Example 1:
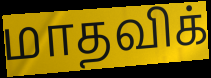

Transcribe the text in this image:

மாதவிக்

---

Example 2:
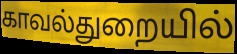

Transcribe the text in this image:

காவல்துறையில்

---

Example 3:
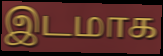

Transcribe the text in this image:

இடமாக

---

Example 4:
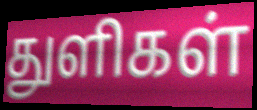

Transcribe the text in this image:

துளிகள்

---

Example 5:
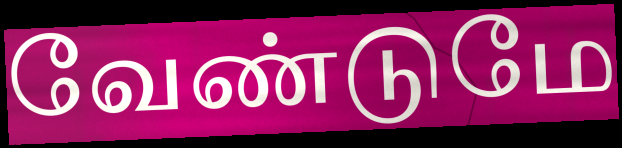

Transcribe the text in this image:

வேண்டுமே